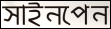
সাইনপেন